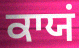
ਕਾਯਂ